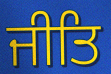
ਜੀਤਿ